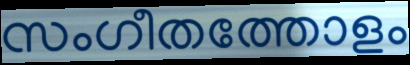
സംഗീതത്തോളം